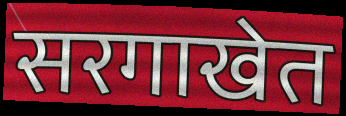
सरगाखेत